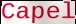
Capel